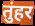
तुंहर